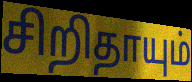
சிறிதாயும்